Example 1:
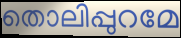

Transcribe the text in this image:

തൊലിപ്പുറമേ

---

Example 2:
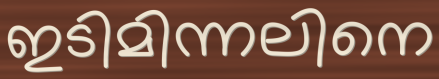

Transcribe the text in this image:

ഇടിമിന്നലിനെ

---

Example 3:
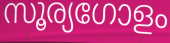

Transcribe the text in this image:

സൂര്യഗോളം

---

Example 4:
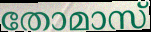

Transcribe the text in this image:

തോമാസ്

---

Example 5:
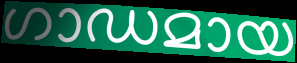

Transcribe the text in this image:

ഗാഡമായ